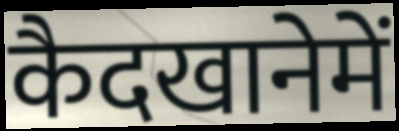
कैदखानेमें